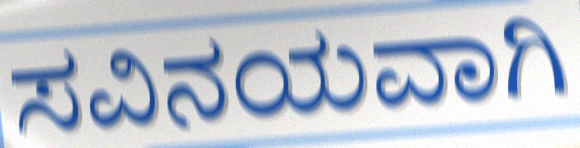
ಸವಿನಯವಾಗಿ